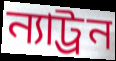
ন্যাট্রন